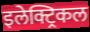
इलेक्ट्रिकल